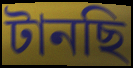
টানছি